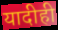
यादीही